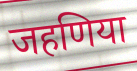
जहणिया